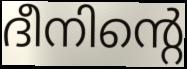
ദീനിന്റെ